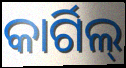
କାର୍ଗିଲ୍